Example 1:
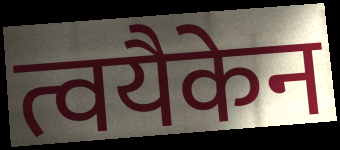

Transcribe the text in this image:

त्वयैकेन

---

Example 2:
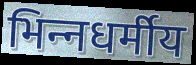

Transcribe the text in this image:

भिन्नधर्मीय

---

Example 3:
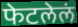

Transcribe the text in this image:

फेटलेलं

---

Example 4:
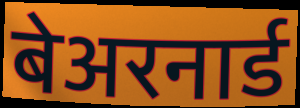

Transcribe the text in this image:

बेअरनार्ड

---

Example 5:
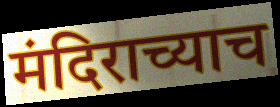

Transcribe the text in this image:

मंदिराच्याच